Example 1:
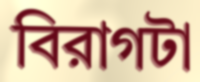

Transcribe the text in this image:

বিরাগটা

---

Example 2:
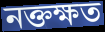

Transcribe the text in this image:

নক্তক্ষত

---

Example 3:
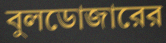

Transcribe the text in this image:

বুলডোজারের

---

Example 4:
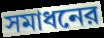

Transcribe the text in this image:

সমাধনের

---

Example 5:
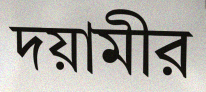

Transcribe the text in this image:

দয়ামীর